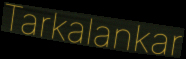
Tarkalankar